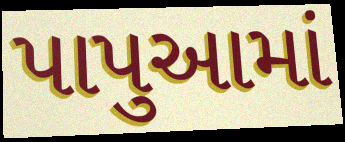
પાપુઆમાં